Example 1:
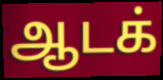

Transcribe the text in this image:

ஆடக்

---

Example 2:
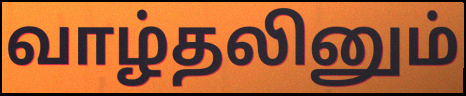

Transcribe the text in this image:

வாழ்தலினும்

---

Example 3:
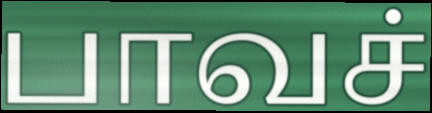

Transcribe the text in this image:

பாவச்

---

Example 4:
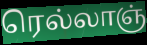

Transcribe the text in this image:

ரெல்லாஞ்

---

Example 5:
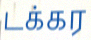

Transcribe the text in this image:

டக்கர